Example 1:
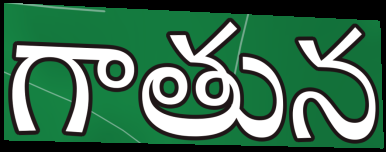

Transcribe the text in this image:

గాతున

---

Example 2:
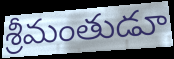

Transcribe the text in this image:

శ్రీమంతుడూ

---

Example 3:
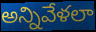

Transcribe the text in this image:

అన్నివేళలా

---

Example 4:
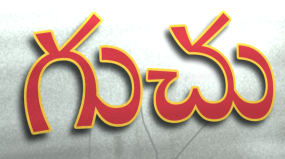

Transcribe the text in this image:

గుచు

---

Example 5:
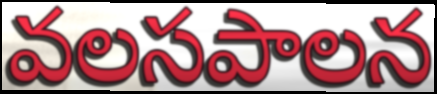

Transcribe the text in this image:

వలసపాలన